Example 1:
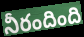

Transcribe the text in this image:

నీరందింది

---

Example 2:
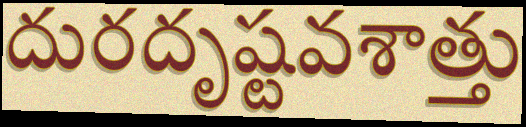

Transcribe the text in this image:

దురదృష్టవశాత్తు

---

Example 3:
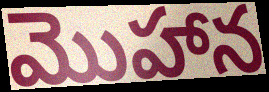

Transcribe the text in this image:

మొహాన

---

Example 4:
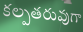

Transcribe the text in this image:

కల్పతరువుగా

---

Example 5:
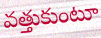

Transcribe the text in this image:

వత్తుకుంటూ